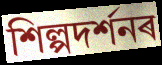
শিল্পদৰ্শনৰ